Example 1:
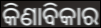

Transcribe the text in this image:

କିଣାବିକାର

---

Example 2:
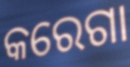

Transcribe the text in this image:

କରେଗା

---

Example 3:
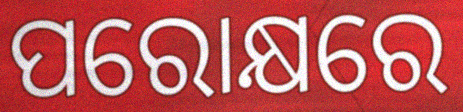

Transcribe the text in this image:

ପରୋକ୍ଷରେ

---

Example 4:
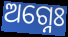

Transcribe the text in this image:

ଅଗ୍ନେଃ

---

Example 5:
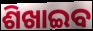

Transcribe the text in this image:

ଶିଖାଇବ